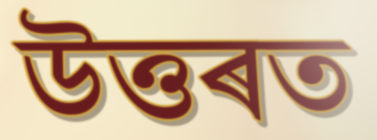
উত্তৰত